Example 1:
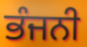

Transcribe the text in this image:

ਭੰਜਨੀ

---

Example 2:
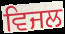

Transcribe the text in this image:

ਵਿਜਲ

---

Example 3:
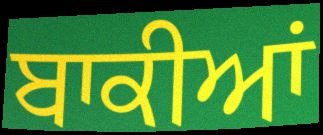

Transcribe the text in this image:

ਬਾਕੀਆਂ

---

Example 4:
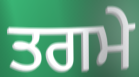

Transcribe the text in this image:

ਤਗਮੇ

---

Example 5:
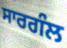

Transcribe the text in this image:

ਸਾਰਗੰਲ